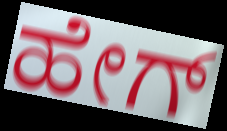
ಹೇಗ್